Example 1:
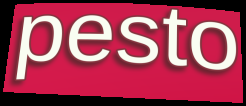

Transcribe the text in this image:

pesto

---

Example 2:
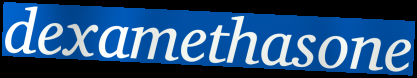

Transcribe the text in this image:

dexamethasone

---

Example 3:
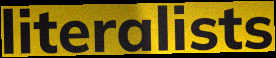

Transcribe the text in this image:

literalists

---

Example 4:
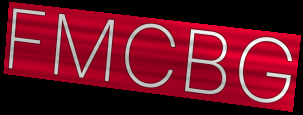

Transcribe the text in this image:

FMCBG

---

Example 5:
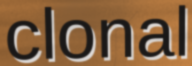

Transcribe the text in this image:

clonal